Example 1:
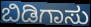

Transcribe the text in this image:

ಬಿಡಿಗಾಸು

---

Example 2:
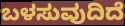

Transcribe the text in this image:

ಬಳಸುವುದಿದೆ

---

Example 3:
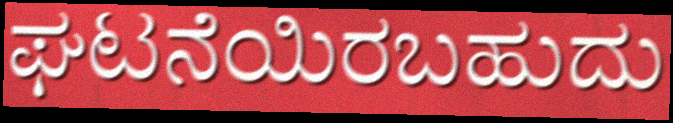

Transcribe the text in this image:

ಘಟನೆಯಿರಬಹುದು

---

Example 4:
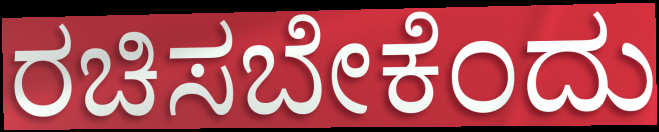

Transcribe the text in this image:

ರಚಿಸಬೇಕೆಂದು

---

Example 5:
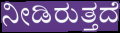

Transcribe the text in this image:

ನೀಡಿರುತ್ತದೆ